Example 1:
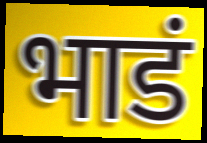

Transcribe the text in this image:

भाडं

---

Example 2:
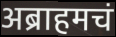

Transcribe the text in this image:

अब्राहमचं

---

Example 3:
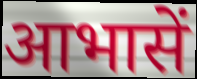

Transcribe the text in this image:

आभासें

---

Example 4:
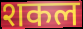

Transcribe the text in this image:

शकल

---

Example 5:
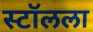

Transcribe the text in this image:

स्टॉलला